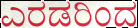
ಎರಡರಿಂದ